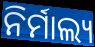
ନିର୍ମାଲ୍ୟ